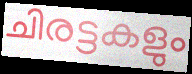
ചിരട്ടകളും